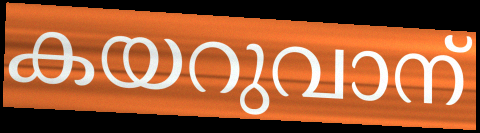
കയറുവാന്